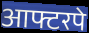
आफ्टरपे